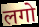
लगो